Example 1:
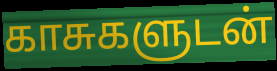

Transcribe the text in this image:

காசுகளுடன்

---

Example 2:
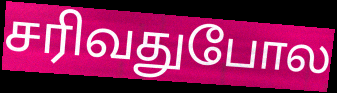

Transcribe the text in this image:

சரிவதுபோல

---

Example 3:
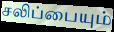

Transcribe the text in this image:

சலிப்பையும்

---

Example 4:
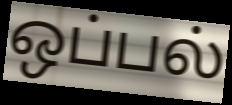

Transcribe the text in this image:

ஒப்பல்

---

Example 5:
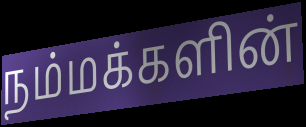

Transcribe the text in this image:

நம்மக்களின்